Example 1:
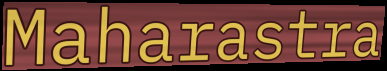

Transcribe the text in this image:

Maharastra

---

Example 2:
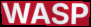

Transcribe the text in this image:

WASP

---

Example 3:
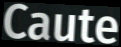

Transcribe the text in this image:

Caute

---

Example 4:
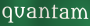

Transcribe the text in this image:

quantam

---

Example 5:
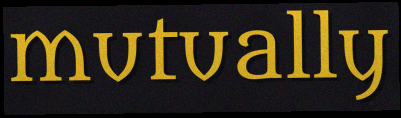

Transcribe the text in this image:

mutually